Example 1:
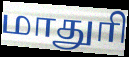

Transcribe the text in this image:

மாதுரி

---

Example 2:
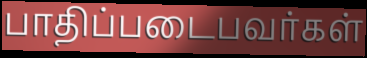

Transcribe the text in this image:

பாதிப்படைபவர்கள்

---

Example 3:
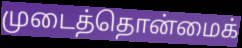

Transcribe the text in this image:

முடைத்தொன்மைக்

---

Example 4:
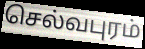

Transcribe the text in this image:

செல்வபுரம்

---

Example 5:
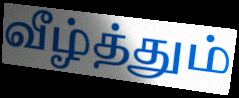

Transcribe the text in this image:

வீழ்த்தும்